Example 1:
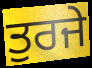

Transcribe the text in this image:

ਤੁਰਜੇ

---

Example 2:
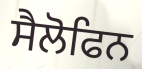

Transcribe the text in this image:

ਸੈਲੋਫਿਨ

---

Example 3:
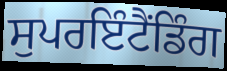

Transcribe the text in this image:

ਸੁਪਰਇੰਟੈਂਡਿੰਗ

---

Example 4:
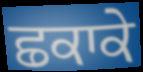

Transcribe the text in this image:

ਛਕਾਕੇ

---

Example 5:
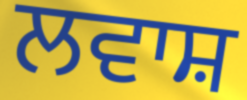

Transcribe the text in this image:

ਲਵਾਸ਼